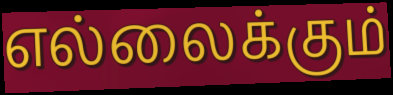
எல்லைக்கும்